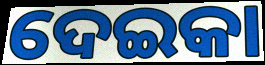
ଦେଇକା